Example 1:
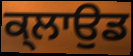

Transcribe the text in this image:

ਕ੍ਲਾਉਡ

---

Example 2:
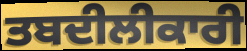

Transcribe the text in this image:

ਤਬਦੀਲੀਕਾਰੀ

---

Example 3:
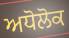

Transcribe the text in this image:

ਅਧੋਲੋਕ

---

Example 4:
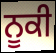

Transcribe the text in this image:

ਨੂਕੀ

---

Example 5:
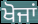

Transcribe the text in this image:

ਖੋਜਾਂ